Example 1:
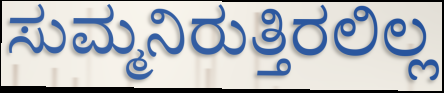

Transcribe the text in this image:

ಸುಮ್ಮನಿರುತ್ತಿರಲಿಲ್ಲ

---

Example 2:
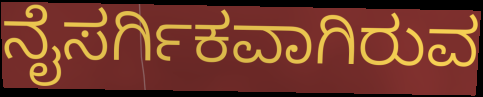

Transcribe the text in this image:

ನೈಸರ್ಗಿಕವಾಗಿರುವ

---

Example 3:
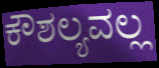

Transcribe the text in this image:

ಕೌಶಲ್ಯವಲ್ಲ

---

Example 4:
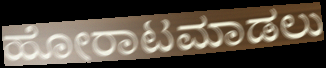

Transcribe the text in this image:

ಹೋರಾಟಮಾಡಲು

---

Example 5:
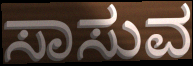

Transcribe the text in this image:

ಸಾಸುವ